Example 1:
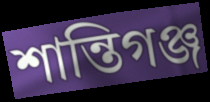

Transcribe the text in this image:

শান্তিগঞ্জ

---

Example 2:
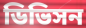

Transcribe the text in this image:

ডিভিসন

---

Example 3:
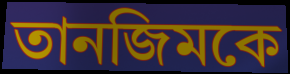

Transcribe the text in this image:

তানজিমকে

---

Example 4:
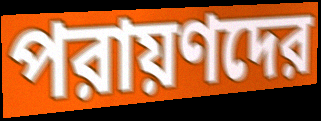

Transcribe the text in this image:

পরায়ণদের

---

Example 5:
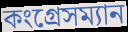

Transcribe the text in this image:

কংগ্রেসম্যান